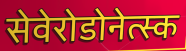
सेवेरोडोनेत्स्क